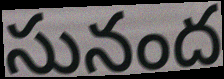
సునంద